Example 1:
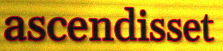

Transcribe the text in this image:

ascendisset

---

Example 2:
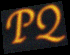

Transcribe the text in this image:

PQ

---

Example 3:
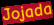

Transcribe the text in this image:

Jojada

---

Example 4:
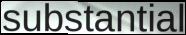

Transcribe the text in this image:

substantial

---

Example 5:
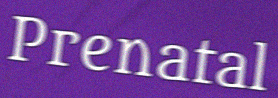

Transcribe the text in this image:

Prenatal